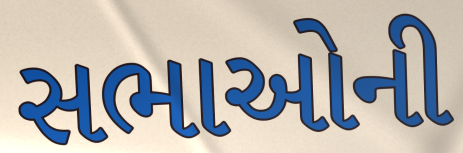
સભાઓની